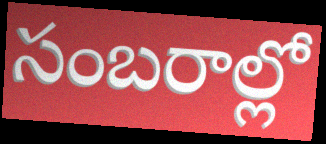
సంబరాల్లో